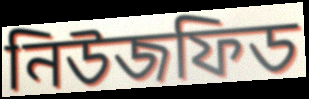
নিউজফিড